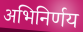
अभिनिर्णय